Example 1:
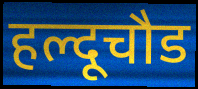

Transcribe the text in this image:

हल्दूचौड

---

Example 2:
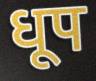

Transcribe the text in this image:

धूप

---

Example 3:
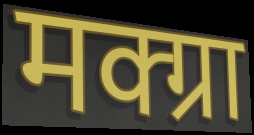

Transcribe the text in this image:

मक्ग्रा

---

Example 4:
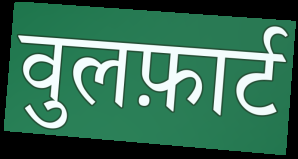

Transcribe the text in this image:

वुलफ़ार्ट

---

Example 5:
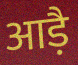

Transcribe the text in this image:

आड़ै